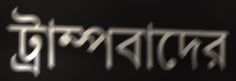
ট্রাম্পবাদের